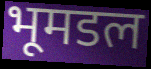
भूमडल